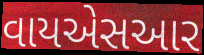
વાયએસઆર